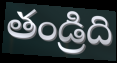
తండ్రిది